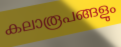
കലാരൂപങ്ങളും